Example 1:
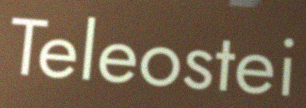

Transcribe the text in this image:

Teleostei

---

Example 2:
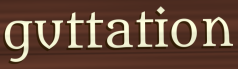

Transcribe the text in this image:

guttation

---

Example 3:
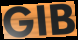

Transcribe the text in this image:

GIB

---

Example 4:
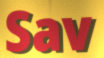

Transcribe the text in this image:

Sav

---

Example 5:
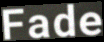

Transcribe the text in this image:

Fade